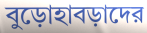
বুড়োহাবড়াদের